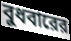
বুধবারের